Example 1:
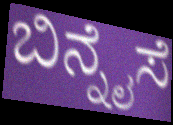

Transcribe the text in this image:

ಬಿನ್ನೈಸೆ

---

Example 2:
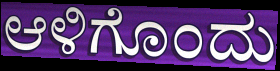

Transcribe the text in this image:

ಆಳಿಗೊಂದು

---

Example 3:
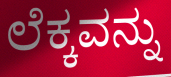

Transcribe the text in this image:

ಲೆಕ್ಕವನ್ನು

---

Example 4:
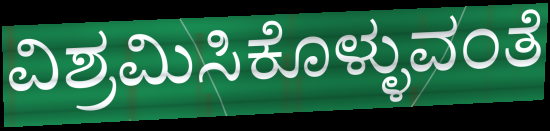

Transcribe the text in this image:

ವಿಶ್ರಮಿಸಿಕೊಳ್ಳುವಂತೆ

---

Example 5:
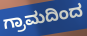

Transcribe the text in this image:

ಗ್ರಾಮದಿಂದ